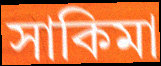
সাকিমা